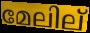
മേലില്